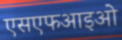
एसएफआइओ